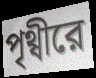
পৃথ্বীরে